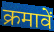
क्रमावें